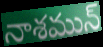
నాశమున్